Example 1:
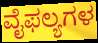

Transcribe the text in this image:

ವೈಫಲ್ಯಗಳ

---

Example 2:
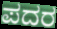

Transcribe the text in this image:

ಪದರ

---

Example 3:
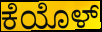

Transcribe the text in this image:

ಕೆಯೊಳ್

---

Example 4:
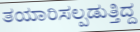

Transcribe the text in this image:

ತಯಾರಿಸಲ್ಪಡುತ್ತಿದ್ದ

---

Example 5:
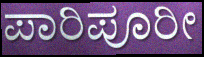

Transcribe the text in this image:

ಪಾರಿಪೂರೀ